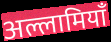
अल्लामियाँ